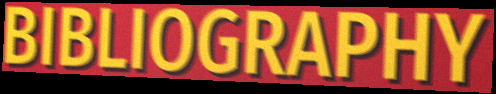
BIBLIOGRAPHY